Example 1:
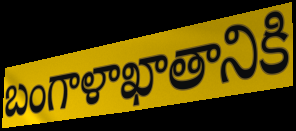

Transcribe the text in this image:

బంగాళాఖాతానికి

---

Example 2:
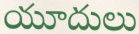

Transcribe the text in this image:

యూదులు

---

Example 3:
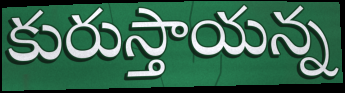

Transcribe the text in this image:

కురుస్తాయన్న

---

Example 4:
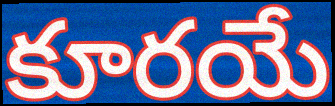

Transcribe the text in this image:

కూరయే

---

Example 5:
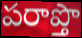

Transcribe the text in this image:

పరాప్తొ